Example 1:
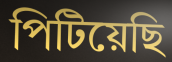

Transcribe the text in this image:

পিটিয়েছি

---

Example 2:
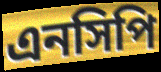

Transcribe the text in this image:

এনসিপি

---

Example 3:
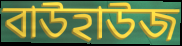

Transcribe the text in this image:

বাউহাউজ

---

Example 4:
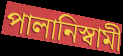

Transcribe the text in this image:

পালানিস্বামী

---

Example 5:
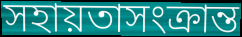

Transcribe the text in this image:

সহায়তাসংক্রান্ত